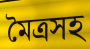
মৈত্রসহ